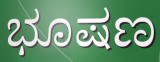
ಭೂಷಣ